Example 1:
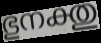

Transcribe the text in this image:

ഭുനക്തു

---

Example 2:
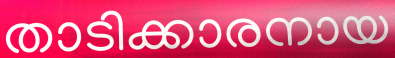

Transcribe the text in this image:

താടിക്കാരനായ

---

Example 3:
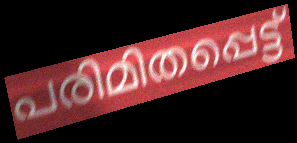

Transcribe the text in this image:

പരിമിതപ്പെട്ട്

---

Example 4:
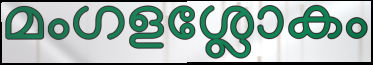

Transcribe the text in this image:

മംഗളശ്ലോകം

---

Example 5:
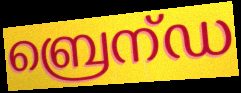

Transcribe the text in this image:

ബ്രെന്ഡ